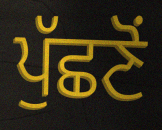
ਪੁੱਛਣੋਂ